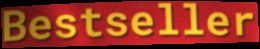
Bestseller